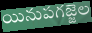
యినుపగజ్జెల